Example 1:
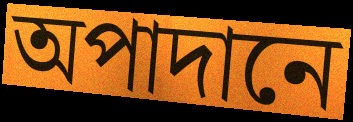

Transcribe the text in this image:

অপাদানে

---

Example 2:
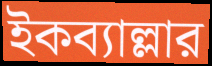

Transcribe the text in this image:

ইকব্যাল্লার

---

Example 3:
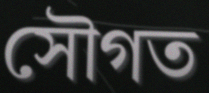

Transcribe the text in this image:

সৌগত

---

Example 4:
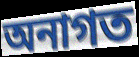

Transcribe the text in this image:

অনাগত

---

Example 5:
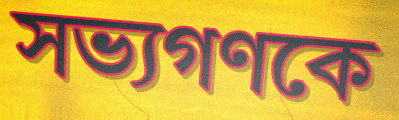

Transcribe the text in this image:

সভ্যগণকে